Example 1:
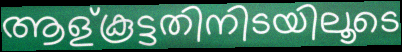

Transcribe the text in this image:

ആള്കൂട്ടതിനിടയിലൂടെ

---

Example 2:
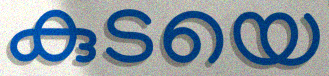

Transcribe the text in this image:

കുടയെ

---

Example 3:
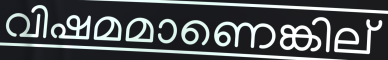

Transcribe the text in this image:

വിഷമമാണെങ്കില്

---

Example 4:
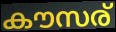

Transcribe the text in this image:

കൗസര്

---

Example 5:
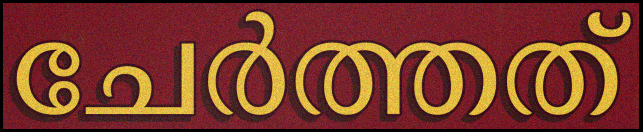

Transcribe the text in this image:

ചേർത്തത്